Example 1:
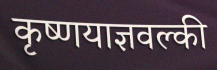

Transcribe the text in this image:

कृष्णयाज्ञवल्की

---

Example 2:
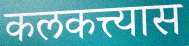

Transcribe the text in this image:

कलकत्त्यास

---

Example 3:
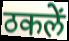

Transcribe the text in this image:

ठकलें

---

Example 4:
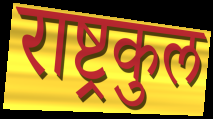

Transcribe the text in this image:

राष्ट्रकुल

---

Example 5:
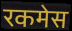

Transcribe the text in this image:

रकमेस